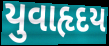
યુવાહૃદય